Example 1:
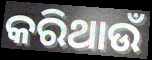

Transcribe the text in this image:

କରିଥାଉଁ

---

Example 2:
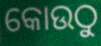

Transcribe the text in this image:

କୋଉଠୁ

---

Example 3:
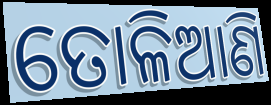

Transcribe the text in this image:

ତୋଳିଆଣି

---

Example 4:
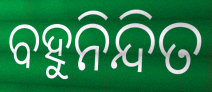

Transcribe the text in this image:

ବହୁନିନ୍ଦିତ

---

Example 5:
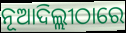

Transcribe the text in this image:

ନୂଆଦିଲ୍ଲୀଠାରେ